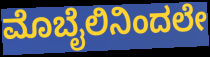
ಮೊಬೈಲಿನಿಂದಲೇ